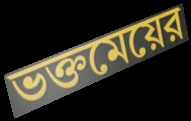
ভক্তমেয়ের